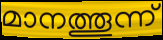
മാനത്തൂന്ന്